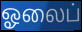
ஓலைப்